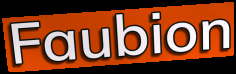
Faubion